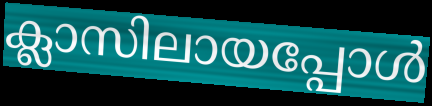
ക്ലാസിലായപ്പോൾ